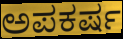
ಅಪಕರ್ಷ